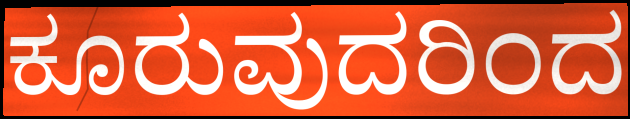
ಕೂರುವುದರಿಂದ